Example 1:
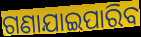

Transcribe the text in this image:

ଗଣାଯାଇପାରିବ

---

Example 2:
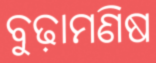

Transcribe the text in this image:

ବୁଢ଼ାମଣିଷ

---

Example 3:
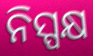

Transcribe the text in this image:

ନିସ୍ପକ୍ଷ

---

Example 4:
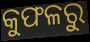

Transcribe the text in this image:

କୁଫଳରୁ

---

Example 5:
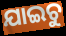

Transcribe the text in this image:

ଯାଇଚୁ